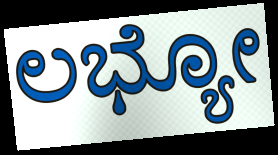
ಲಭ್ಯೋ